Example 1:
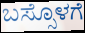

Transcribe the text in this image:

ಬಸ್ಸೊಳಗೆ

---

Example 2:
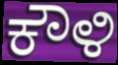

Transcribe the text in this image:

ಕೌಳಿ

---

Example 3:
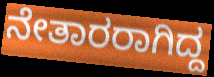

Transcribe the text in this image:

ನೇತಾರರಾಗಿದ್ದ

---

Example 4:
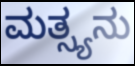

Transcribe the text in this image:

ಮತ್ಸ್ಯನು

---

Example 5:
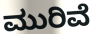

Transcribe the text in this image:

ಮುರಿವೆ